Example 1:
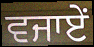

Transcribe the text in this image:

ਵਜਾਏਂ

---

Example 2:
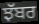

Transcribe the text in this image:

ਝੱਬਰ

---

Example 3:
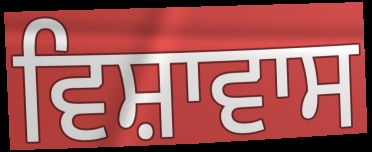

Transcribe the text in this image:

ਵਿਸ਼ਾਵਾਸ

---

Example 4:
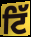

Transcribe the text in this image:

ਟਿੱ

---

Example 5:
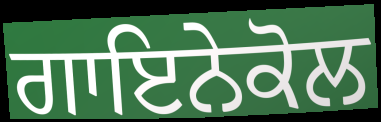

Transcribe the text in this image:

ਗਾਇਨੇਕੋਲ